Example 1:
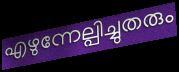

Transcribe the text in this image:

എഴുന്നേല്പിച്ചുതരും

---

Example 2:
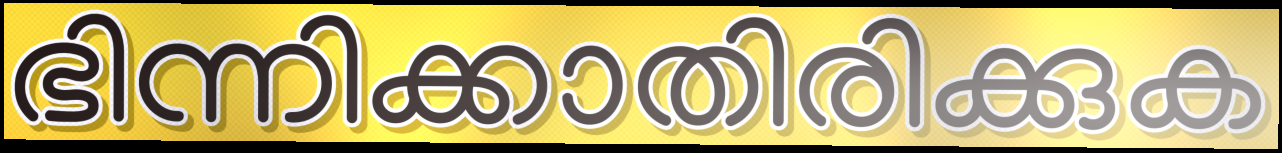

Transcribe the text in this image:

ഭിന്നിക്കാതിരിക്കുക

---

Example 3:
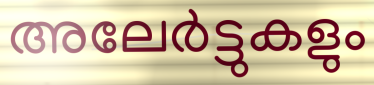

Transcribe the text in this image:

അലേർട്ടുകളും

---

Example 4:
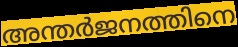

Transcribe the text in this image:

അന്തർജനത്തിനെ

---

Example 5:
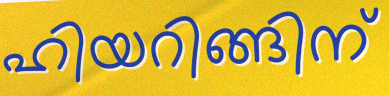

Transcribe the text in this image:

ഹിയറിങ്ങിന്